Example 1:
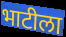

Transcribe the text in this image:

भाटीला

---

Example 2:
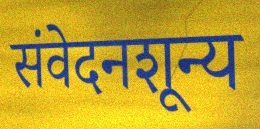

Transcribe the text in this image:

संवेदनशून्य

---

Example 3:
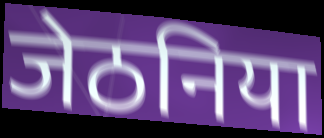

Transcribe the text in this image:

जेठनिया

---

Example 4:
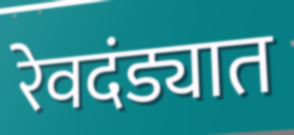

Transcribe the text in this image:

रेवदंड्यात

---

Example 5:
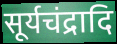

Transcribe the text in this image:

सूर्यचंद्रादि